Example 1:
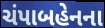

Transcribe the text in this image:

ચંપાબહેનના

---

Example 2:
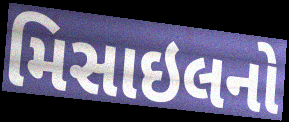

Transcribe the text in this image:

મિસાઇલનો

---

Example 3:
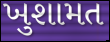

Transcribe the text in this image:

ખુશામત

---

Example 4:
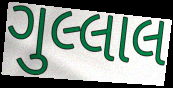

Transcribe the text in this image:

ગુલ્લાલ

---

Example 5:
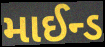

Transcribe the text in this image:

માઈન્ડ